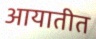
आयातीत